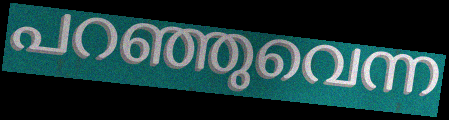
പറഞ്ഞുവെന്ന